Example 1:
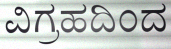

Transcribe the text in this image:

ವಿಗ್ರಹದಿಂದ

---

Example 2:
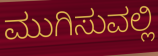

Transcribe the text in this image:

ಮುಗಿಸುವಲ್ಲಿ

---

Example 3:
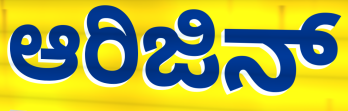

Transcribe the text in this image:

ಆರಿಜಿನ್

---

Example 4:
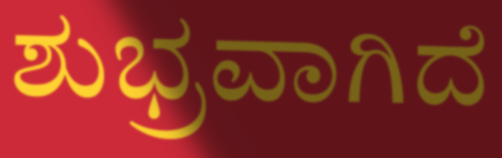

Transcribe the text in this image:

ಶುಭ್ರವಾಗಿದೆ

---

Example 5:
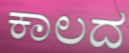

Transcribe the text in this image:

ಕಾಲದ